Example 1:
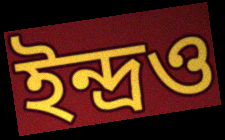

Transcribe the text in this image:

ইন্দ্রও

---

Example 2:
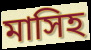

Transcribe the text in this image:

মাসিহ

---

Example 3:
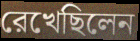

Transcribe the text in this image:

রেখেছিলেন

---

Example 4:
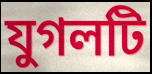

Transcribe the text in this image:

যুগলটি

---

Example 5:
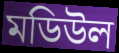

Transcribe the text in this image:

মডিউল